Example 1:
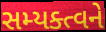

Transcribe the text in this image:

સમ્યક્ત્વને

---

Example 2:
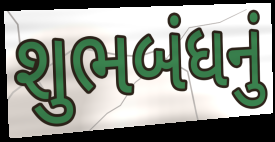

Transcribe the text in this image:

શુભબંધનું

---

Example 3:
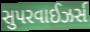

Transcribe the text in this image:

સુપરવાઈઝર્સ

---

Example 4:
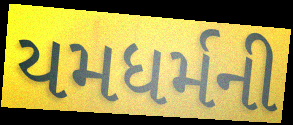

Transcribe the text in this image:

યમધર્મની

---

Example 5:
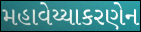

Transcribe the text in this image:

મહાવેય્યાકરણેન